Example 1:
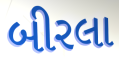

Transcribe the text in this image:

બીરલા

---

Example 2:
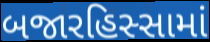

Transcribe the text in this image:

બજારહિસ્સામાં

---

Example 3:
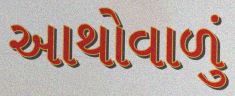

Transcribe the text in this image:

આથોવાળું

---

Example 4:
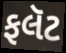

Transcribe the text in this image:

ફલૅટ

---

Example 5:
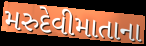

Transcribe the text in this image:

મરુદેવીમાતાના